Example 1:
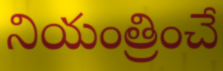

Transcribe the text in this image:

నియంత్రించే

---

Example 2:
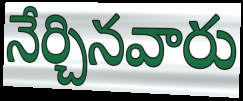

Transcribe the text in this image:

నేర్చినవారు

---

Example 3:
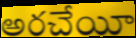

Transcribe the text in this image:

అరచేయీ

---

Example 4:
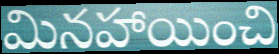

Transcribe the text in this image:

మినహాయించి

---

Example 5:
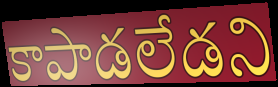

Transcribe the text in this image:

కాపాడలేడని